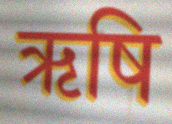
ॠषि